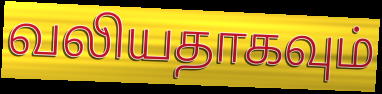
வலியதாகவும்